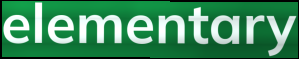
elementary